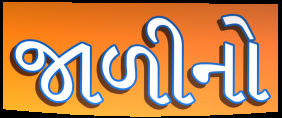
જાળીનો